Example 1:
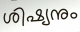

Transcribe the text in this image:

ശിഷ്യനും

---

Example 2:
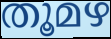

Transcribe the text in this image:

തൂമഴ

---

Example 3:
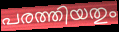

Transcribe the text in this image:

പരത്തിയതും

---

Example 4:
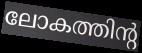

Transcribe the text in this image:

ലോകത്തിന്റ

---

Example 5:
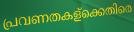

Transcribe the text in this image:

പ്രവണതകള്ക്കെതിരെ